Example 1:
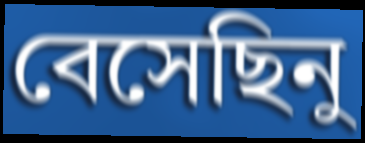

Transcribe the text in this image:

বেসেছিনু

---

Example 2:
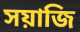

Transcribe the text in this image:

সয়াজি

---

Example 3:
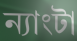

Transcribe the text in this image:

ন্যাংটা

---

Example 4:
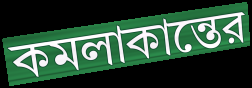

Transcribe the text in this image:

কমলাকান্তের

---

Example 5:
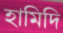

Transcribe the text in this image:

হামিদি